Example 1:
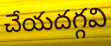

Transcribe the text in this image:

చేయదగ్గవి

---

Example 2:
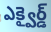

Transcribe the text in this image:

ఎక్వైర్డ్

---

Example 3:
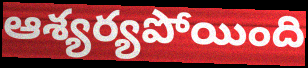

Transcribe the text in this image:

ఆశ్యర్యపోయింది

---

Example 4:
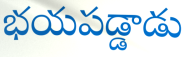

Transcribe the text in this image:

భయపడ్డాడు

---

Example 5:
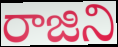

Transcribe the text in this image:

రాజిని